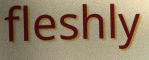
fleshly